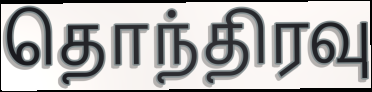
தொந்திரவு